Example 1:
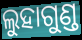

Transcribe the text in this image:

ଲୁହାଗୁଣ୍ଡ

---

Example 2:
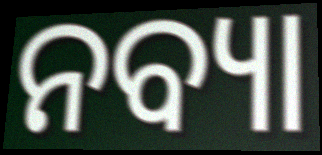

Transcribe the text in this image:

ନବ୍ୟା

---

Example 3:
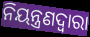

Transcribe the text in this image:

ନିୟନ୍ତ୍ରଣଦ୍ବାରା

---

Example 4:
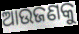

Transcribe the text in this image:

ଆଉଜଣକୁ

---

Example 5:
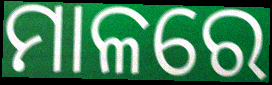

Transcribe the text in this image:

ମାଳରେ